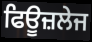
ਫਿਊਜ਼ਲੇਜ